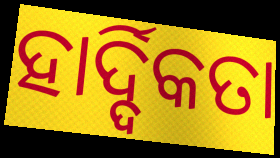
ହାର୍ଦ୍ଦିକତା